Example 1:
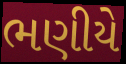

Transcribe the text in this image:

ભણીયે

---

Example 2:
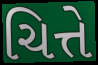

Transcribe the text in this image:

ચિત્તે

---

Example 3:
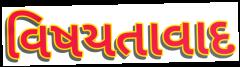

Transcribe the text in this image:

વિષયતાવાદ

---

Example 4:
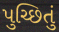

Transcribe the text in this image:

પુચ્છિતું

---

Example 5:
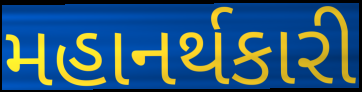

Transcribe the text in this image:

મહાનર્થકારી